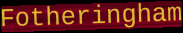
Fotheringham